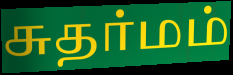
சுதர்மம்